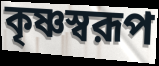
কৃষ্ণস্বরূপ